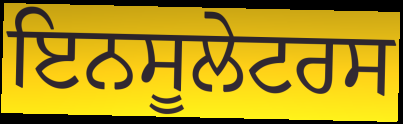
ਇਨਸੂਲੇਟਰਸ